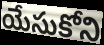
యేసుకోని